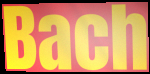
Bach